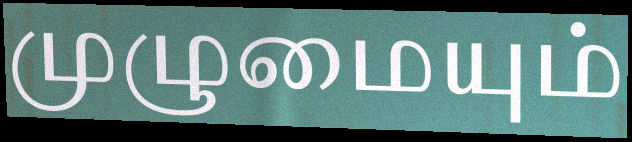
முழுமையும்